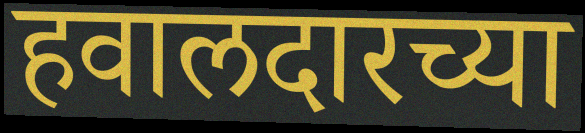
हवालदारच्या